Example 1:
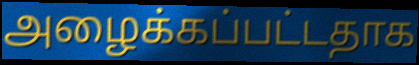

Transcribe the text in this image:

அழைக்கப்பட்டதாக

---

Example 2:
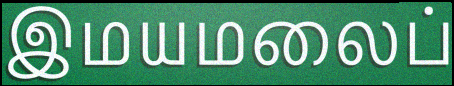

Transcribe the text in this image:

இமயமலைப்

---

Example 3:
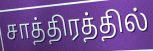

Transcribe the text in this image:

சாத்திரத்தில்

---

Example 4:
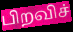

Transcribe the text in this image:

பிறவிச்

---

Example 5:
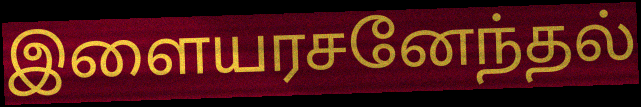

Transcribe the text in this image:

இளையரசனேந்தல்